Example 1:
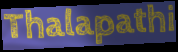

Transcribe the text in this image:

Thalapathi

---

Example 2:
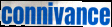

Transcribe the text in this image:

connivance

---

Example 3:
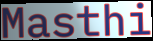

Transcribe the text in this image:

Masthi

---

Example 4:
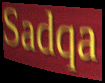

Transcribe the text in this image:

Sadqa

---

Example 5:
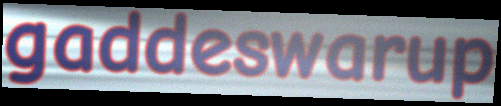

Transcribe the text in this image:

gaddeswarup